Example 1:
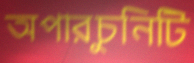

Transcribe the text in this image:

অপারচুনিটি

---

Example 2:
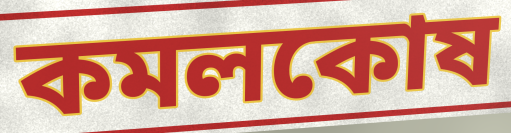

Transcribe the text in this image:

কমলকোষ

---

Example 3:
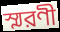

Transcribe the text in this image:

স্মরণী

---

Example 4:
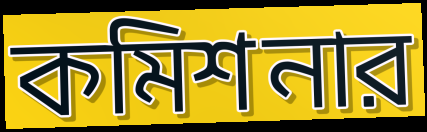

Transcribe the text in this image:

কমিশনার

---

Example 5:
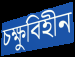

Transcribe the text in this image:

চক্ষুবিহীন